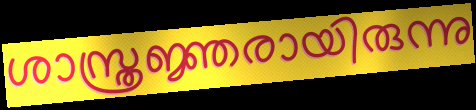
ശാസ്ത്രജ്ഞരായിരുന്നു